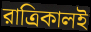
রাত্রিকালই